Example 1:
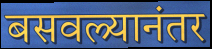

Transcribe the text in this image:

बसवल्यानंतर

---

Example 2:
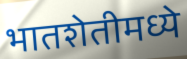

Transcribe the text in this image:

भातशेतीमध्ये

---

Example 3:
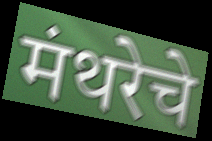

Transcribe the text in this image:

मंथरेचे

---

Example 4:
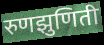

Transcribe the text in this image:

रुणझुणिती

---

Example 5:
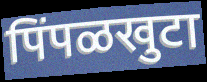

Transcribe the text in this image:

पिंपळखुटा